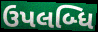
ઉપલબ્ધિ